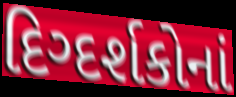
દિગ્દર્શકોનાં